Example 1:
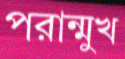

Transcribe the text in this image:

পরান্মুখ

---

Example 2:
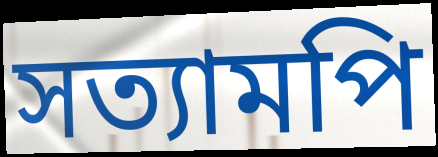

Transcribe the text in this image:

সত্যামপি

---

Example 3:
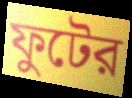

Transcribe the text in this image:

ফুটের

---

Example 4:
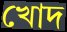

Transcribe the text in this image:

খোদ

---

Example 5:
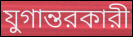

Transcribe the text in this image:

যুগান্তরকারী